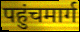
पहुंचमार्ग